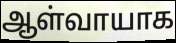
ஆள்வாயாக